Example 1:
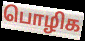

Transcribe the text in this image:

பொழிக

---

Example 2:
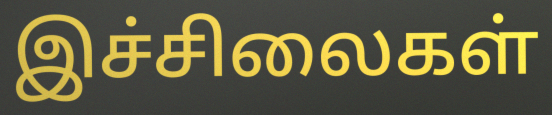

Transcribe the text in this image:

இச்சிலைகள்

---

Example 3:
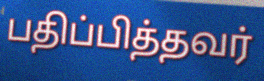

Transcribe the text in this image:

பதிப்பித்தவர்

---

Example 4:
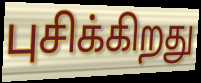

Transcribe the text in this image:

புசிக்கிறது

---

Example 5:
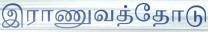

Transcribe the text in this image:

இராணுவத்தோடு